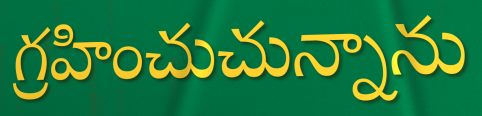
గ్రహించుచున్నాను